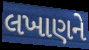
લખાણને